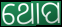
ଥୋପ